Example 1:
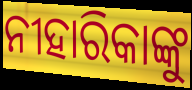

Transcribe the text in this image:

ନୀହାରିକାଙ୍କୁ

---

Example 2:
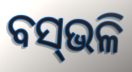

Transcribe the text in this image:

ବସ୍‌ଭଳି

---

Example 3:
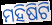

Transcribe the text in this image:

ମହିଷିଟି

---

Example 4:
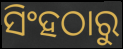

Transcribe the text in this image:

ସିଂହଠାରୁ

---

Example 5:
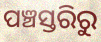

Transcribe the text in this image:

ପଞ୍ଚସ୍ତରିରୁ